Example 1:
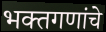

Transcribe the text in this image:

भक्तगणांचे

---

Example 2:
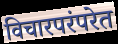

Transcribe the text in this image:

विचारपरंपरेत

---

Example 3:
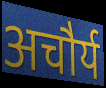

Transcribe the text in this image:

अचौर्य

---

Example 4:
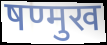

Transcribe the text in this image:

षण्मुख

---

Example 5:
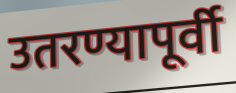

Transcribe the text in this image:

उतरण्यापूर्वी